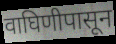
वाघिणीपासून